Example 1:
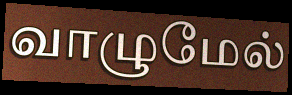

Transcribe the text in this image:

வாழுமேல்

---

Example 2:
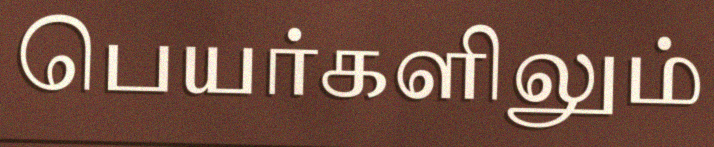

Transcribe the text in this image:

பெயர்களிலும்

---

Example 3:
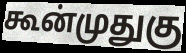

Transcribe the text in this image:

கூன்முதுகு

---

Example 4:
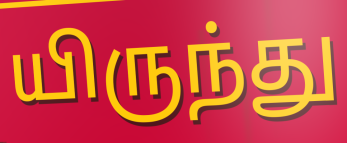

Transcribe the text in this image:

யிருந்து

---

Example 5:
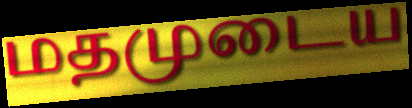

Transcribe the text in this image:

மதமுடைய